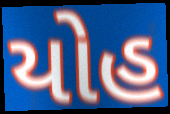
યોહ